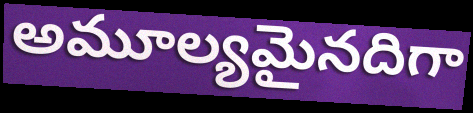
అమూల్యమైనదిగా